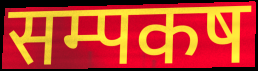
सम्पकष